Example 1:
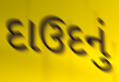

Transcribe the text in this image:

દાઉદનું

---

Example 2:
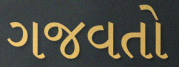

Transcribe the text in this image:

ગજવતો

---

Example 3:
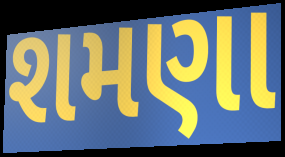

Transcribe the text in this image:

શમણા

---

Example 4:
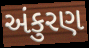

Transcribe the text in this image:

અંકુરણ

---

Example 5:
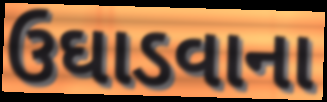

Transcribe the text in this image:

ઉઘાડવાના